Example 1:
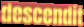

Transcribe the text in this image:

descendit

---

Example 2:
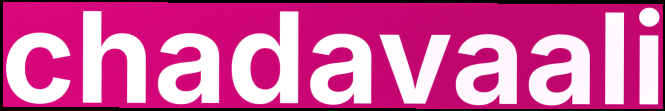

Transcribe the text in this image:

chadavaali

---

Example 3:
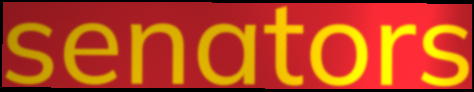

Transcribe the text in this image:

senators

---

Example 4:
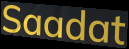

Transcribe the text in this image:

Saadat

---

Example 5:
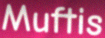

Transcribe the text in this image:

Muftis